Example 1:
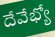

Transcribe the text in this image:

దేవేభ్యో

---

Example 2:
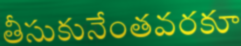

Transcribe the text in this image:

తీసుకునేంతవరకూ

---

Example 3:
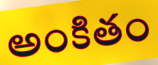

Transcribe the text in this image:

అంకితం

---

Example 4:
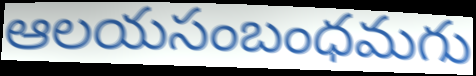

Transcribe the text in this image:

ఆలయసంబంధమగు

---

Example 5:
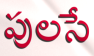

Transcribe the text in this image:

పులసే